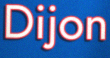
Dijon